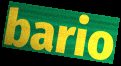
bario